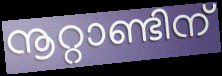
നൂറ്റാണ്ടിന്